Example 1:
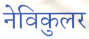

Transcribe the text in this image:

नेविकुलर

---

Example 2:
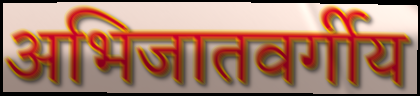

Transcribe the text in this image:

अभिजातवर्गीय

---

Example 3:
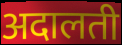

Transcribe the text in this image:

अदालती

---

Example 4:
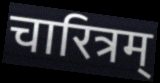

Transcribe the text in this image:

चारित्रम्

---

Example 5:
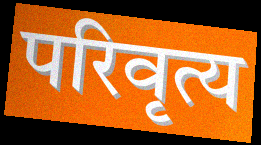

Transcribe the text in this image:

परिवृत्य